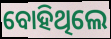
ବୋହିଥିଲେ